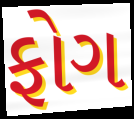
ફોગ